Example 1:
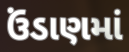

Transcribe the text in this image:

ઉંડાણમાં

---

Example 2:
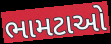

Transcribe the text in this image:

ભામટાઓ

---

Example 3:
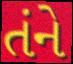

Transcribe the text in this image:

તંને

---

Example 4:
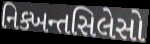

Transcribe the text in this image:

નિક્ખન્તસિલેસો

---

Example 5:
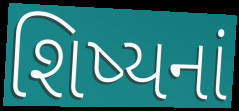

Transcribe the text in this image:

શિષ્યનાં